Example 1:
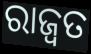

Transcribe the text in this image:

ରାଜ୍ୱତ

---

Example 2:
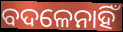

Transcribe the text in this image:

ବଦଳେନାହିଁ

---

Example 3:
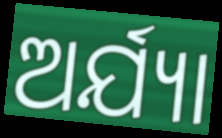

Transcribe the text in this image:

ଅର୍ଯ୍ୟା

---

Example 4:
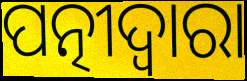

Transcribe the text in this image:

ପତ୍ନୀଦ୍ୱାରା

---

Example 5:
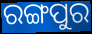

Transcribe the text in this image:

ରଙ୍ଗପୁର